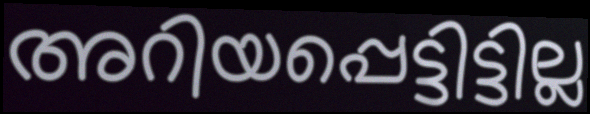
അറിയപ്പെട്ടിട്ടില്ല